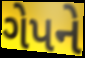
ગેપને